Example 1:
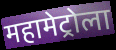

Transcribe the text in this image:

महामेट्रोला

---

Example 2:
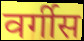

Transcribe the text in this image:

वर्गीस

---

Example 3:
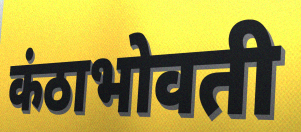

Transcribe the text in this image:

कंठाभोवती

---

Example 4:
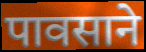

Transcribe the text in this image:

पावसाने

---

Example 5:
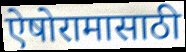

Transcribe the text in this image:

ऐषोरामासाठी